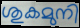
ശുകമുനി